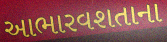
આભારવશતાના